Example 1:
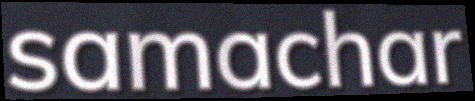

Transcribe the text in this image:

samachar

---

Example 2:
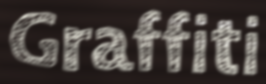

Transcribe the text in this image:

Graffiti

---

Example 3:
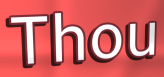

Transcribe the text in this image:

Thou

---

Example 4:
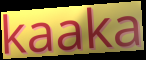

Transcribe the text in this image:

kaaka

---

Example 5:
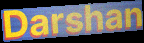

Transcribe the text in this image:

Darshan